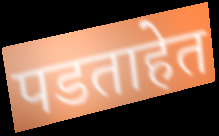
पडताहेत